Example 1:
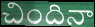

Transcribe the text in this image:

చిందినా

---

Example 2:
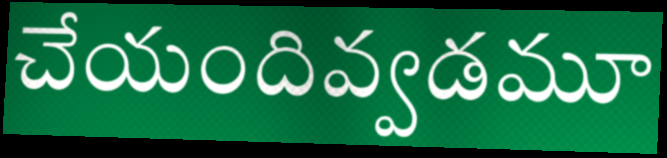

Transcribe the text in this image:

చేయందివ్వడమూ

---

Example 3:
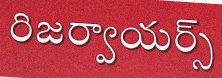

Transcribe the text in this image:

రిజర్వాయర్స్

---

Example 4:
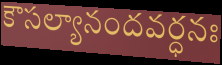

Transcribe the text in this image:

కౌసల్యానందవర్ధనః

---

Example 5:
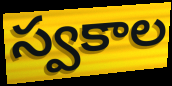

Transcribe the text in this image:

స్వకాల